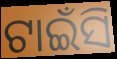
ଟାଇଁସି